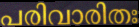
പരിവാരിതഃ